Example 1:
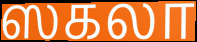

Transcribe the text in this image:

ஸகலா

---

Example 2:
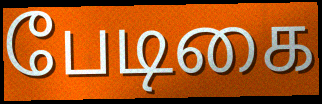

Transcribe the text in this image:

பேடிகை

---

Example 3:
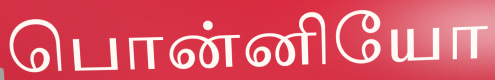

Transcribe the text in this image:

பொன்னியோ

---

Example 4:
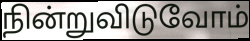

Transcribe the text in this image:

நின்றுவிடுவோம்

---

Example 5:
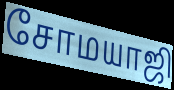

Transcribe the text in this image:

சோமயாஜி